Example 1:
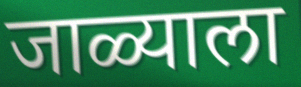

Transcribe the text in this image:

जाळ्याला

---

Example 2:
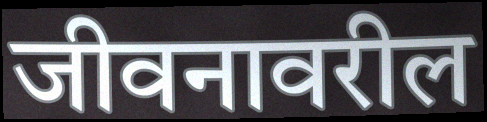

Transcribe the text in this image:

जीवनावरील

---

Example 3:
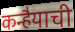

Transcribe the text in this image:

कन्हैयाची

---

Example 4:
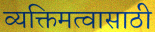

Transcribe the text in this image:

व्यक्तिमत्वासाठी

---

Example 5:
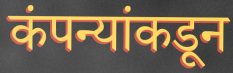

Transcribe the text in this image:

कंपन्यांकडून